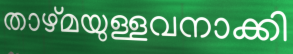
താഴ്മയുള്ളവനാക്കി